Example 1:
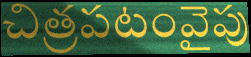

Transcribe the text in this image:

చిత్రపటంవైపు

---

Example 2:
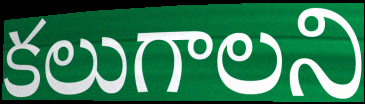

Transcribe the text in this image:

కలుగాలని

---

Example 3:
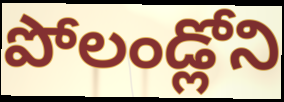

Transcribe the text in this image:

పోలండ్లోని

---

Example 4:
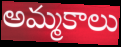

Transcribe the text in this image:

అమ్మకాలు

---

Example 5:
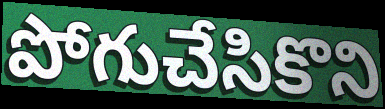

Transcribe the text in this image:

పోగుచేసికొని